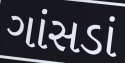
ગાંસડાં